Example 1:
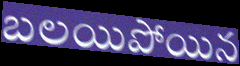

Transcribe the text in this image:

బలయిపోయిన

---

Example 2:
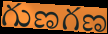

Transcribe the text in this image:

గుణగణ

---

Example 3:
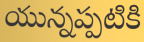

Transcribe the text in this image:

యున్నప్పటికి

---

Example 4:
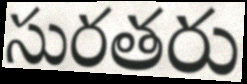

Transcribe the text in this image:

సురతరు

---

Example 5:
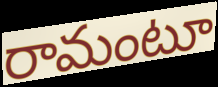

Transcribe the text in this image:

రామంటూ